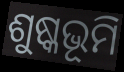
ଶୁଷ୍କଭୂମି